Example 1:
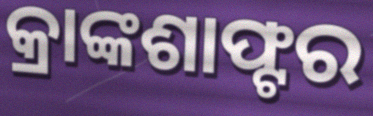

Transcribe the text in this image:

କ୍ରାଙ୍କଶାଫ୍ଟର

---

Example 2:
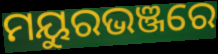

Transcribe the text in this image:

ମୟୁରଭଞ୍ଜରେ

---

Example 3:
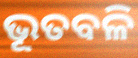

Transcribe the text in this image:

ଭୂତବଳି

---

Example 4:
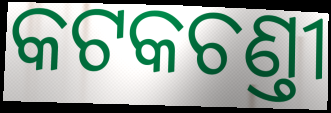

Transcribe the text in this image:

କଟକଚଣ୍ତୀ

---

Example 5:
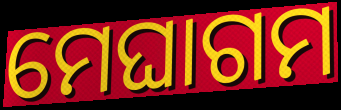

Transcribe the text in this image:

ମେଘାଗମ